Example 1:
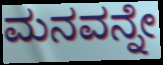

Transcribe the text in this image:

ಮನವನ್ನೇ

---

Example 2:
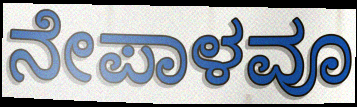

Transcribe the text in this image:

ನೇಪಾಳವೂ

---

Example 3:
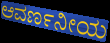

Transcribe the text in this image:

ಆವರ್ಣನೀಯ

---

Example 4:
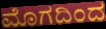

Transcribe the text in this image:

ಮೊಗದಿಂದ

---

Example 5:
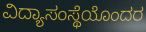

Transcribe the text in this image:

ವಿದ್ಯಾಸಂಸ್ಥೆಯೊಂದರ